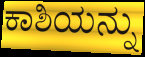
ಕಾಶಿಯನ್ನು